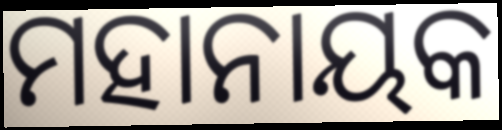
ମହାନାୟକ